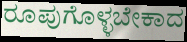
ರೂಪುಗೊಳ್ಳಬೇಕಾದ